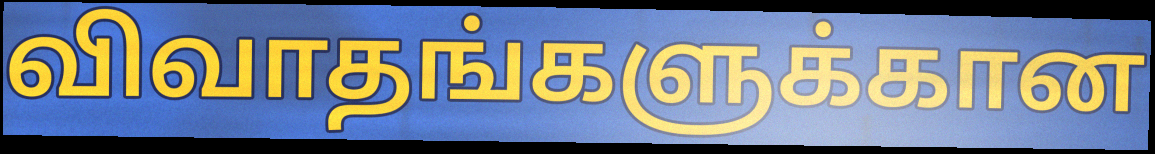
விவாதங்களுக்கான